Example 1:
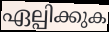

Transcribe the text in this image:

ഏല്പിക്കുക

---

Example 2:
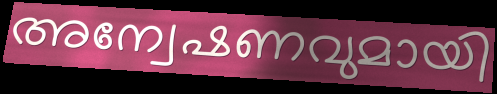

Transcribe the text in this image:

അന്വേഷണവുമായി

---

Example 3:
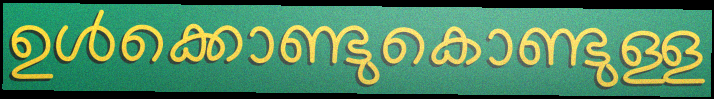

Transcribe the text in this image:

ഉൾക്കൊണ്ടുകൊണ്ടുള്ള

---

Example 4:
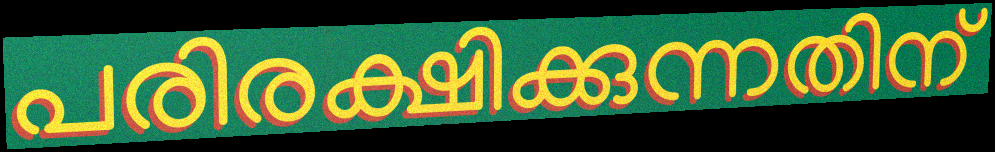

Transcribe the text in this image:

പരിരക്ഷിക്കുന്നതിന്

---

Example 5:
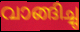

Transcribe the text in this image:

വാങ്ങിച്ചു